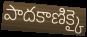
పాదకాణిక్కై